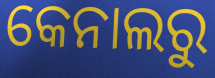
କେନାଲରୁ